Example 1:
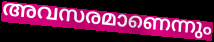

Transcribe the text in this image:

അവസരമാണെന്നും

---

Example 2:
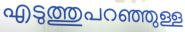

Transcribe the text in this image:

എടുത്തുപറഞ്ഞുള്ള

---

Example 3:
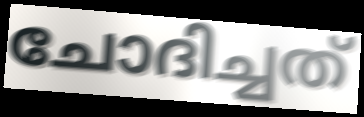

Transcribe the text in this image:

ചോദിച്ചത്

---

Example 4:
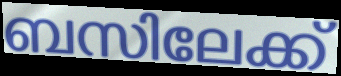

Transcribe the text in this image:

ബസിലേക്ക്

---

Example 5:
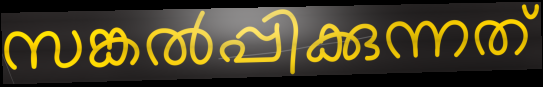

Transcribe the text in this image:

സങ്കൽപ്പിക്കുന്നത്